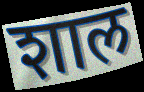
शाल